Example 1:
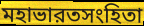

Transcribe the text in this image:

মহাভারতসংহিতা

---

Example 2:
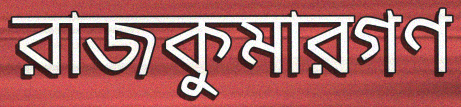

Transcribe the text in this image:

রাজকুমারগণ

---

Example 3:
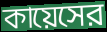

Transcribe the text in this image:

কায়েসের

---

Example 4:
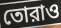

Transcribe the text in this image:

তোরাও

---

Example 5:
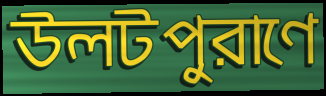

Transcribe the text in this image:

উলটপুরাণে